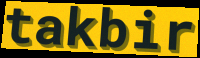
takbir